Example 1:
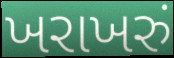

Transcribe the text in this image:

ખરાખરું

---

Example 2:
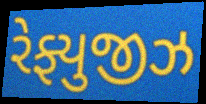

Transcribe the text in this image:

રેફ્યુજીઝ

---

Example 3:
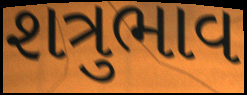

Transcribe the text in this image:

શત્રુભાવ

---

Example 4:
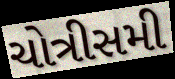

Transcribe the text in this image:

ચોત્રીસમી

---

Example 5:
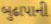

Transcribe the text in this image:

બુઢાપાની